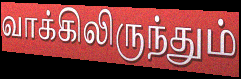
வாக்கிலிருந்தும்